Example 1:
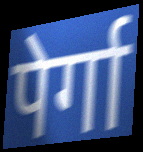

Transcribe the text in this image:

पेर्गा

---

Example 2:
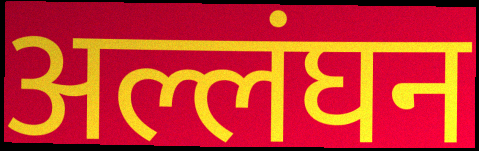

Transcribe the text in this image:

अल्लंघन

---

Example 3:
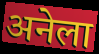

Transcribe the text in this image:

अनेला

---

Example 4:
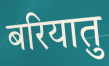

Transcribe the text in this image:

बरियातु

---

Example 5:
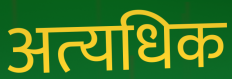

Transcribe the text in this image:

अत्‍यधिक